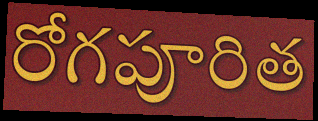
రోగపూరిత